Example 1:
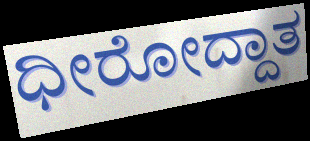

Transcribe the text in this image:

ಧೀರೋದ್ದಾತ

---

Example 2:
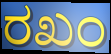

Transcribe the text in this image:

ರಖಂ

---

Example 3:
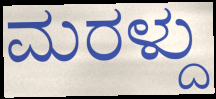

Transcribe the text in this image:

ಮರಳ್ದು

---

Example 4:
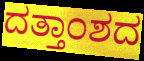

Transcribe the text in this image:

ದತ್ತಾಂಶದ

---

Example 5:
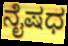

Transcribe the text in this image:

ನೈಷಧ